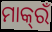
ମାକ୍‌ରଁ